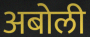
अबोली